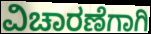
ವಿಚಾರಣೆಗಾಗಿ